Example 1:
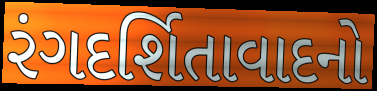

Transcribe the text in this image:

રંગદર્શિતાવાદનો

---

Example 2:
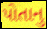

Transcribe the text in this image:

પોતાનુ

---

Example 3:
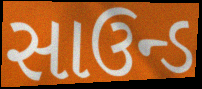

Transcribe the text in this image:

સાઉન્ડ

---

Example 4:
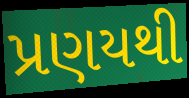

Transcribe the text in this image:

પ્રણયથી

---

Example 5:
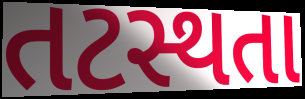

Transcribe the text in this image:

તટસ્થતા